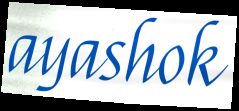
ayashok